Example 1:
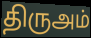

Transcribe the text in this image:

திருஅம்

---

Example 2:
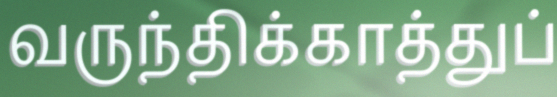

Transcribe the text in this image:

வருந்திக்காத்துப்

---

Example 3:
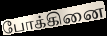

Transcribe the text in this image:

போக்கினை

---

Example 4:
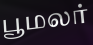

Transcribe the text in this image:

பூமலர்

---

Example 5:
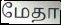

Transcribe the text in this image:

மேதா